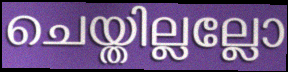
ചെയ്തില്ലല്ലോ